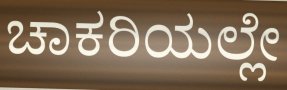
ಚಾಕರಿಯಲ್ಲೇ